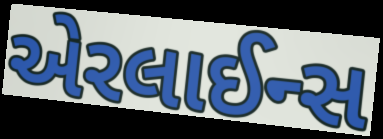
એરલાઈન્સ